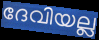
ദേവിയല്ല